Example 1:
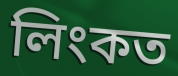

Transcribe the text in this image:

লিংকত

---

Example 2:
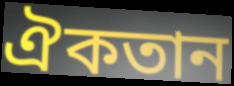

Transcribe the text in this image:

ঐকতান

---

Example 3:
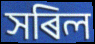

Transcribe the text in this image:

সৰিল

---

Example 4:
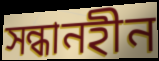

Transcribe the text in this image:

সন্ধানহীন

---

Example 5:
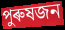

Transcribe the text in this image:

পুৰুষজন